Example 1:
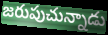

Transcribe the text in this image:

జరుపుచున్నాడు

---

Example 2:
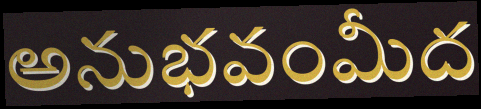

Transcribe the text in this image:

అనుభవంమీద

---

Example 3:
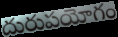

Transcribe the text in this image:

దురుపయోగం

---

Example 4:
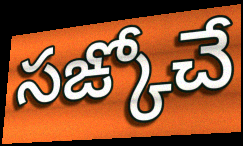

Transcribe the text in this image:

సఙ్కోచే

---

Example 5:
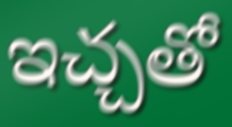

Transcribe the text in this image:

ఇచ్చతో